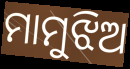
ମାମୁଝିଅ